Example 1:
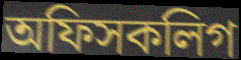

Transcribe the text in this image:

অফিসকলিগ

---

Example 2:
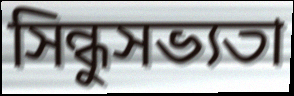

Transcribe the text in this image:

সিন্ধুসভ্যতা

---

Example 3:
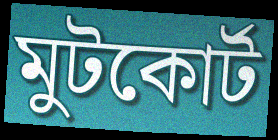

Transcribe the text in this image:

মুটকোর্ট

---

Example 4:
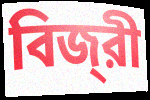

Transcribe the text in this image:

বিজ্‌রী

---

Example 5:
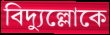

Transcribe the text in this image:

বিদ্যুল্লোকে